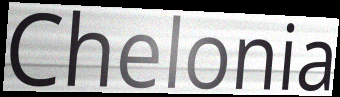
Chelonia